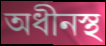
অধীনস্থ